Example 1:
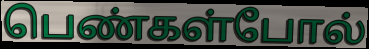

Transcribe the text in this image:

பெண்கள்போல்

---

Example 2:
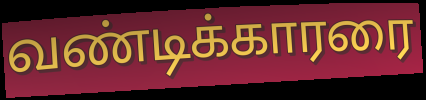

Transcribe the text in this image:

வண்டிக்காரரை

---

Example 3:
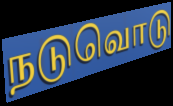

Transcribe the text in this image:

நடுவொடு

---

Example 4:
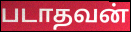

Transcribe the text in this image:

படாதவன்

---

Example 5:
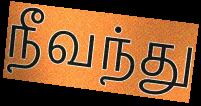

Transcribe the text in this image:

நீவந்து